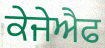
ਕੇਜੇਐਫ